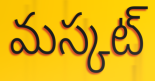
మస్కట్